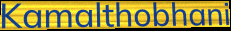
Kamalthobhani